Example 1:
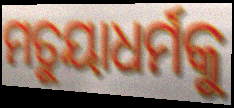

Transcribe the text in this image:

ମତୁୟାଧର୍ମକୁ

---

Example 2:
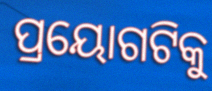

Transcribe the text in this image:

ପ୍ରୟୋଗଟିକୁ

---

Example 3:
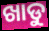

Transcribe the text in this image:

ଖାଡୁ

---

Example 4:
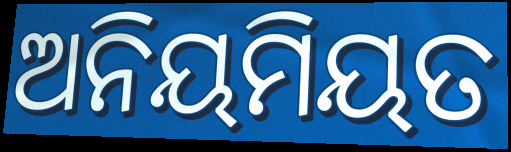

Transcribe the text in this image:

ଅନିୟମିୟତ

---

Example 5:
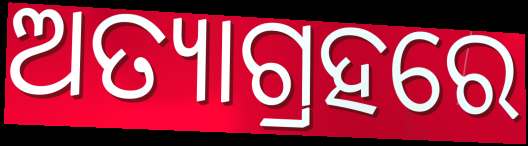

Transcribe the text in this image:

ଅତ୍ୟାଗ୍ରହରେ